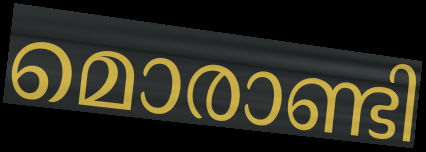
മൊരാണ്ടി